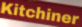
Kitchiner